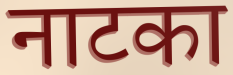
नाटका